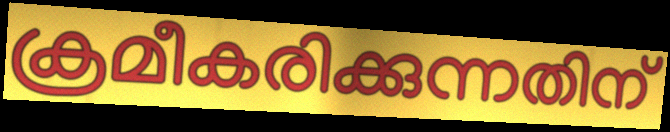
ക്രമീകരിക്കുന്നതിന്